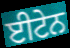
ਈਟੇਨ